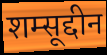
शम्सूद्दीन